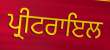
ਪ੍ਰੀਟਰਾਇਲ